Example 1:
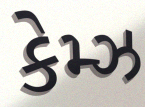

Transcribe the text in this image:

કેમ્ઝ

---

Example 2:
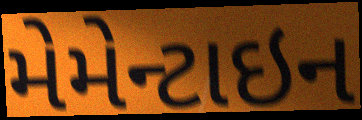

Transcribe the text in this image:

મેમેન્ટાઇન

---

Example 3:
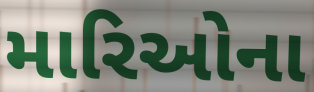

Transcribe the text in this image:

મારિઓના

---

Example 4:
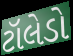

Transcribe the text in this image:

ટૉલેડો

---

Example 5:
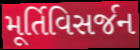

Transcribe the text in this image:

મૂર્તિવિસર્જન